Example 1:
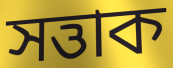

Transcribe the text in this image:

সত্তাক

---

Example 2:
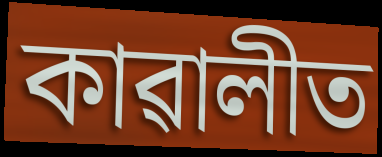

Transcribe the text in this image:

কাৱালীত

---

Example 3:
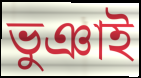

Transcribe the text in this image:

ভুঞাই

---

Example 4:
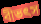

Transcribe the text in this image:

বীভৎস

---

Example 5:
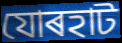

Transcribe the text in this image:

যোৰহাট